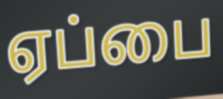
ஏப்பை